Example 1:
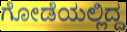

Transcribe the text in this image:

ಗೋಡೆಯಲ್ಲಿದ್ದ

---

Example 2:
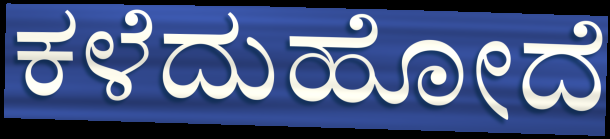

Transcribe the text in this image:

ಕಳೆದುಹೋದೆ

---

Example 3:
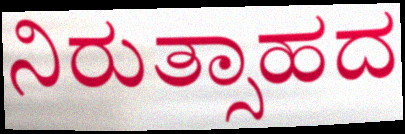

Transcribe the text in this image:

ನಿರುತ್ಸಾಹದ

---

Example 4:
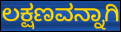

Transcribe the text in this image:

ಲಕ್ಷಣವನ್ನಾಗಿ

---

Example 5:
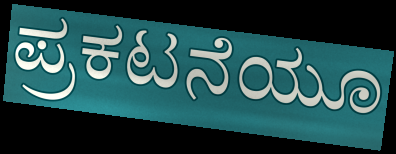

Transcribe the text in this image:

ಪ್ರಕಟನೆಯೂ